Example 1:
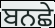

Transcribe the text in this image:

ਬਨਛੇ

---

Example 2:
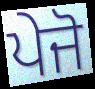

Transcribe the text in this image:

ਪੇਜੋ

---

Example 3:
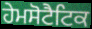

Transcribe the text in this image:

ਹੇਮਸੋਟੈਟਿਕ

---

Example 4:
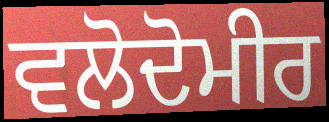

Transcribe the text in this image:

ਵਲੋਦੋਮੀਰ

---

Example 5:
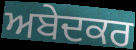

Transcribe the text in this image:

ਅਬੇਦਕਰ